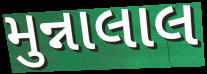
મુન્નાલાલ